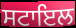
ਸਟਾਇਲ